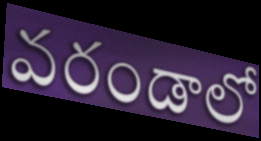
వరండాలో